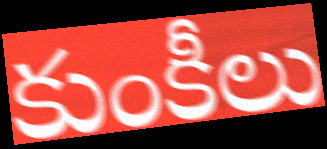
కుంకీలు